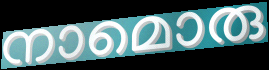
നാമൊരു